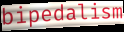
bipedalism